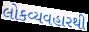
લોકવ્યવહારથી